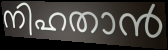
നിഹതാൻ